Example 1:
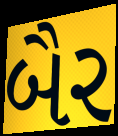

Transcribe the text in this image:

બૈર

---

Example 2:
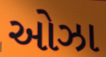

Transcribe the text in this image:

ઓઝા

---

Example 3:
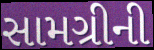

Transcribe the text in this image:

સામગ્રીની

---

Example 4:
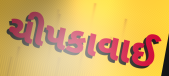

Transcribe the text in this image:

ચીપકાવાઈ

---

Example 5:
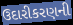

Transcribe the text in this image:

ઉદારીકરણની